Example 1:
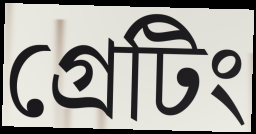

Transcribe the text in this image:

গ্রেটিং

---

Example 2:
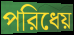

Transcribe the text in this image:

পরিধেয়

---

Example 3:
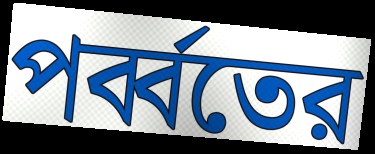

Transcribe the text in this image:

পর্ব্বতের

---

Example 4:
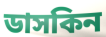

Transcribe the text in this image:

ডাসকিন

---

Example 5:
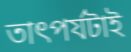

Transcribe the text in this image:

তাৎপর্যটাই